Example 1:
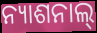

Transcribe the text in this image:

ନ୍ୟାଶନାଲ୍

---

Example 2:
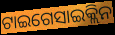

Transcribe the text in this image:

ଟାଇଗେସାଇକ୍ଲିନ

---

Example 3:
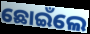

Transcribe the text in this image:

ଛୋଇଁଲେ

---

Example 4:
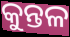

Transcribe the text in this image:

କୁନ୍ତଳ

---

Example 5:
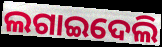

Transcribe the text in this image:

ଲଗାଇଦେଲି